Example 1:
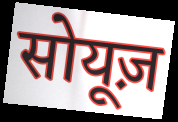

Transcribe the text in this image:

सोयूज़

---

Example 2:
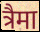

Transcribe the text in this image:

त्रैमा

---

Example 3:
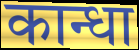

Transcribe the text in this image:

कान्धा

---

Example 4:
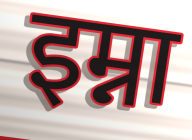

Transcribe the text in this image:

इम्ना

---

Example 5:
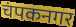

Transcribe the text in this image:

चंपकनगर